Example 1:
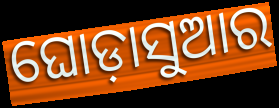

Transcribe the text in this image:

ଘୋଡ଼ାସୁଆର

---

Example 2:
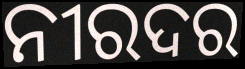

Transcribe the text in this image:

ନୀରଦର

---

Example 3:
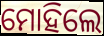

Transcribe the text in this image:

ମୋହିଲେ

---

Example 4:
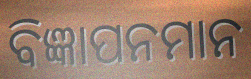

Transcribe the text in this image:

ବିଜ୍ଞାପନମାନ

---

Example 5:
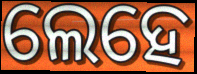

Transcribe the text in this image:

ଲେହେ